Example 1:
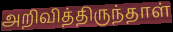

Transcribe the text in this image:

அறிவித்திருந்தாள்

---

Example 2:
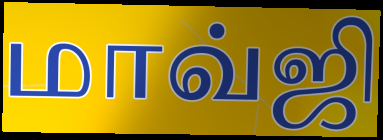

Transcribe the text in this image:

மாவ்ஜி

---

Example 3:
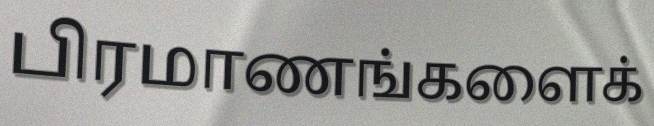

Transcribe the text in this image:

பிரமாணங்களைக்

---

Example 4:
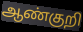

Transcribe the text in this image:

ஆண்குறி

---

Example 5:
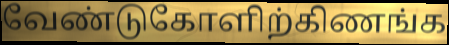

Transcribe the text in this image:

வேண்டுகோளிற்கிணங்க